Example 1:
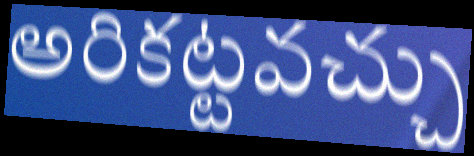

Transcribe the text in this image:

అరికట్టవచ్చు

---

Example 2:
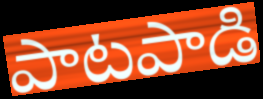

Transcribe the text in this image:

పాటపాడి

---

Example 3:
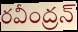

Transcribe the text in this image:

రవీంద్రన్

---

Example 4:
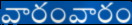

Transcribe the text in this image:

వారంవారం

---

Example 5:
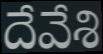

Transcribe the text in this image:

దేవేశి